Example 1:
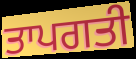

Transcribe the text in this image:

ਤਾਪਗਤੀ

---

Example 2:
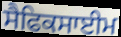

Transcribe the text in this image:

ਸੈਫਿਕਸਾਈਮ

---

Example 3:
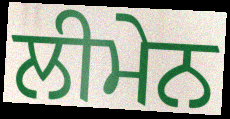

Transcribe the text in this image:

ਲੀਮੇਨ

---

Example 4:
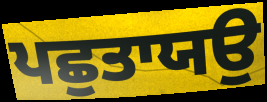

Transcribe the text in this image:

ਪਛੁਤਾਯਉ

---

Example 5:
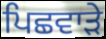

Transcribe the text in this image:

ਪਿਛਵਾੜੇ